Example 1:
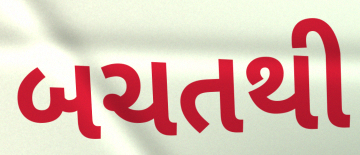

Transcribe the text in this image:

બચતથી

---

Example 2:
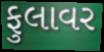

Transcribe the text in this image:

ફુલાવર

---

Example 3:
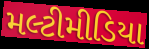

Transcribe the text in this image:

મલ્ટીમીડિયા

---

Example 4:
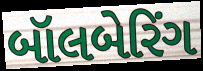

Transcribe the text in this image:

બૉલબેરિંગ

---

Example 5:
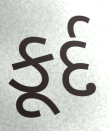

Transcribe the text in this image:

કૂર્દ